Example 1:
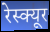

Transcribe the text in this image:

रेस्क्यूर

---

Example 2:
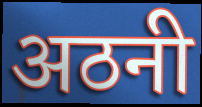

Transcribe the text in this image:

अठनी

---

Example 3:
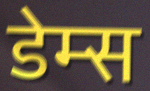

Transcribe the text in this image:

डेम्स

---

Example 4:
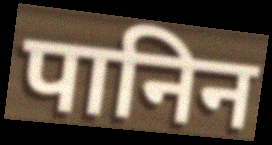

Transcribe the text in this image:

पानिन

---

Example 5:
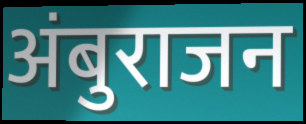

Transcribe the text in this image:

अंबुराजन